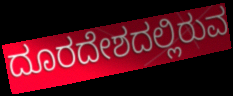
ದೂರದೇಶದಲ್ಲಿರುವ